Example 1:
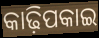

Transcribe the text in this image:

କାଢ଼ିପକାଇ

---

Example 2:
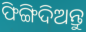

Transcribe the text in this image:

ଫିଙ୍ଗିଦିଅନ୍ତୁ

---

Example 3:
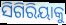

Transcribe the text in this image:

ସିଗିରିୟାକୁ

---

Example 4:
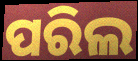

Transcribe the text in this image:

ପରିଲ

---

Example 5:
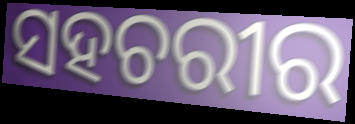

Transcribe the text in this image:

ସହଚରୀର